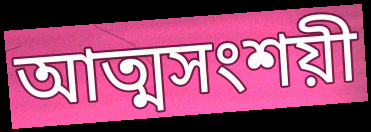
আত্মসংশয়ী